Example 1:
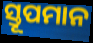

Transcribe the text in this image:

ସ୍ତୂପମାନ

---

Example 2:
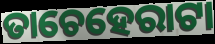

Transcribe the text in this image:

ତାଚେହେରାଟା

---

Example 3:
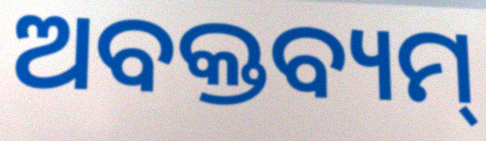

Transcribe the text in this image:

ଅବକ୍ତବ୍ୟମ୍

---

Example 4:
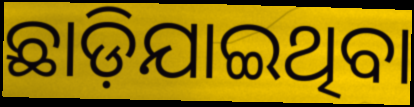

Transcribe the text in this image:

ଛାଡ଼ିଯାଇଥିବା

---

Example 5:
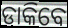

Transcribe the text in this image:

ଡାକିବେ